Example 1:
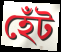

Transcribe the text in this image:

হেঁট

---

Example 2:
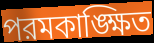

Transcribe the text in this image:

পরমকাঙ্ক্ষিত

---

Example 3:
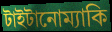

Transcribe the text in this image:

টাইটানোম্যাকি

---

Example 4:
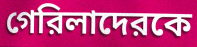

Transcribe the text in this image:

গেরিলাদেরকে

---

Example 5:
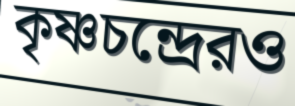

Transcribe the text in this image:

কৃষ্ণচন্দ্রেরও